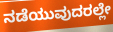
ನಡೆಯುವುದರಲ್ಲೇ